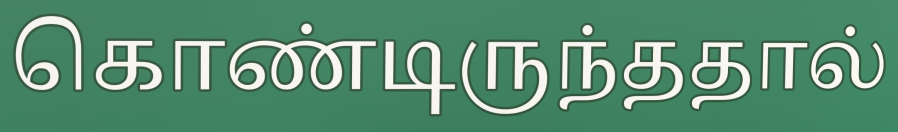
கொண்டிருந்ததால்